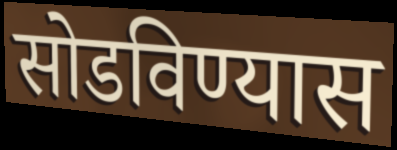
सोडविण्यास